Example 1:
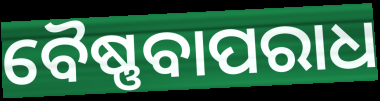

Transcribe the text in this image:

ବୈଷ୍ଣବାପରାଧ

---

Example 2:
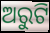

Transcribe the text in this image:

ଅରୁଟି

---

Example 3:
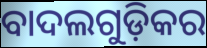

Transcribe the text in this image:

ବାଦଲଗୁଡ଼ିକର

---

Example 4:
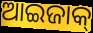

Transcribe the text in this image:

ଆଇଜାକ୍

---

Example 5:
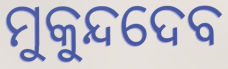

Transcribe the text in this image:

ମୁକୁନ୍ଦଦେବ